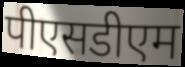
पीएसडीएम